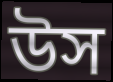
উস